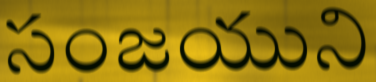
సంజయుని